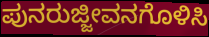
ಪುನರುಜ್ಜೀವನಗೊಳಿಸಿ